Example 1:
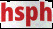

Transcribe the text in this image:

hsph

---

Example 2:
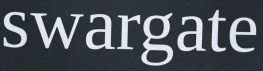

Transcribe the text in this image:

swargate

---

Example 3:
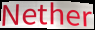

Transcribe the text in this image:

Nether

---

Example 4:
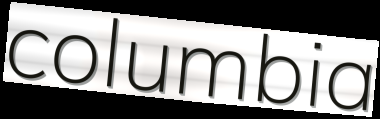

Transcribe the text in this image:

columbia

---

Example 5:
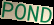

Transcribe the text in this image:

POND